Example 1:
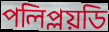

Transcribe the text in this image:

পলিপ্লয়ডি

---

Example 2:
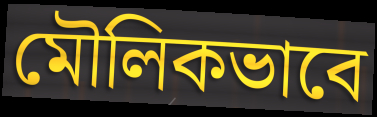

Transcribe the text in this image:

মৌলিকভাবে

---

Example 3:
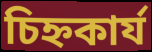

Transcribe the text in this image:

চিহ্নকার্য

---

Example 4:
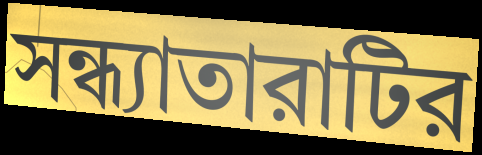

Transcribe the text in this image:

সন্ধ্যাতারাটির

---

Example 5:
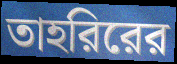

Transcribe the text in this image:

তাহরিরের